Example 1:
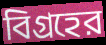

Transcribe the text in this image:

বিগ্রহের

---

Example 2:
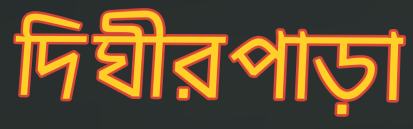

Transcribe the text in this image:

দিঘীরপাড়া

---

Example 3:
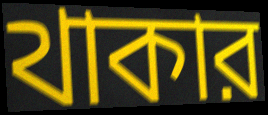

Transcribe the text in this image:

থাকার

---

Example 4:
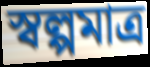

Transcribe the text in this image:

স্বল্পমাত্র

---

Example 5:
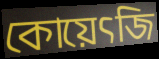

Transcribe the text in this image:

কোয়েৎজি